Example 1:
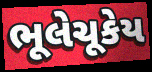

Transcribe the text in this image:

ભૂલેચૂકેય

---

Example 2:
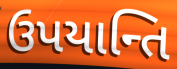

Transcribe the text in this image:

ઉપયાન્તિ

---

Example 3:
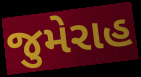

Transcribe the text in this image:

જુમેરાહ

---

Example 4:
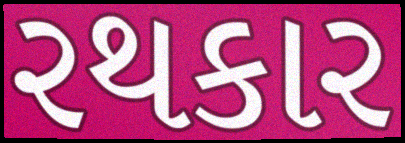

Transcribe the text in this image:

રથકાર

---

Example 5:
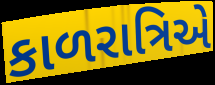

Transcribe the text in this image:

કાળરાત્રિએ